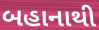
બહાનાથી